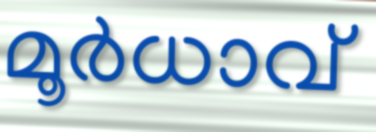
മൂർധാവ്